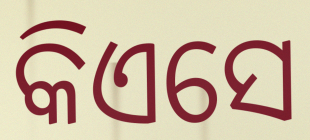
କିଏସେ